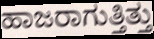
ಹಾಜರಾಗುತ್ತಿತ್ತು